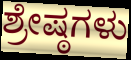
ಶ್ರೇಷ್ಠಗಳು